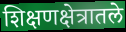
शिक्षणक्षेत्रातले